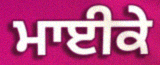
ਮਾਈਕੇ